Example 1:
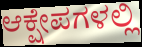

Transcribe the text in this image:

ಆಕ್ಷೇಪಗಳಲ್ಲಿ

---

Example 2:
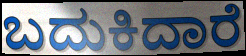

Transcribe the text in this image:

ಬದುಕಿದಾರೆ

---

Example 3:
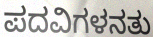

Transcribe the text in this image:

ಪದವಿಗಳನತು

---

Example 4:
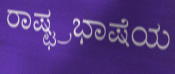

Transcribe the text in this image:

ರಾಷ್ಟ್ರಭಾಷೆಯ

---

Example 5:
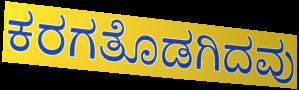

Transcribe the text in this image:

ಕರಗತೊಡಗಿದವು